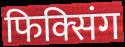
फिक्‍सिंग